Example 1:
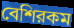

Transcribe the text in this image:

বেশিরকম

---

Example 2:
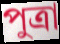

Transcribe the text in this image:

পুত্রা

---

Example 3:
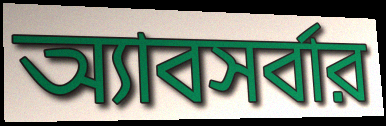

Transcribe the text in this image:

অ্যাবসর্বার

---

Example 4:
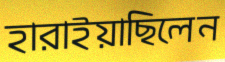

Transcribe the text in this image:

হারাইয়াছিলেন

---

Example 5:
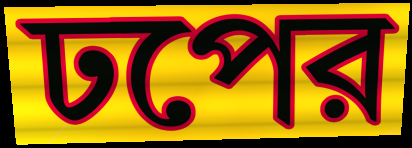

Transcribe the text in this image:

ঢপের